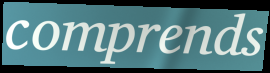
comprends